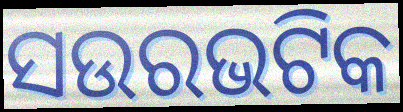
ସଉରଭଟିକ